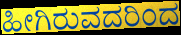
ಹೀಗಿರುವದರಿಂದ